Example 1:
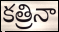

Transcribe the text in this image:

కత్రినా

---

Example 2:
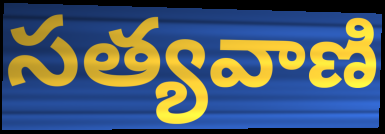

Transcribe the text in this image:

సత్యవాణి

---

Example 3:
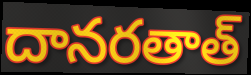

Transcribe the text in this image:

దానరతాత్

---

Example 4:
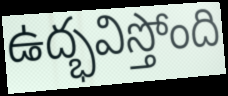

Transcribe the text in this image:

ఉద్భవిస్తోంది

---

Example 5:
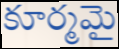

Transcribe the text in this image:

కూర్మమై